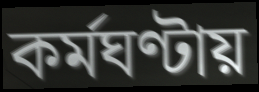
কর্মঘণ্টায়